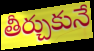
తీర్చుకునే